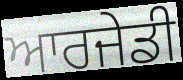
ਆਰਜੇਡੀ